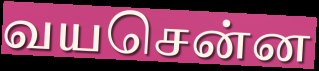
வயசென்ன